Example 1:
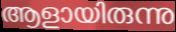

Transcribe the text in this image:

ആളായിരുന്നു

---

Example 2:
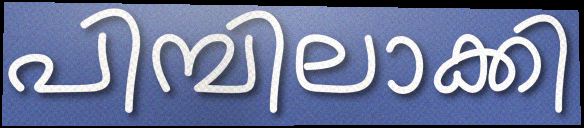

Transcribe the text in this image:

പിമ്പിലാക്കി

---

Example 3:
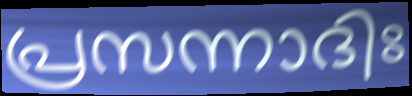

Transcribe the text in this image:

പ്രസന്നാദിഃ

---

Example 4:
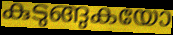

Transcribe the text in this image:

കുടുങ്ങുകയോ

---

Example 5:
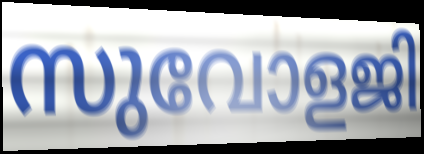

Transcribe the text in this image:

സുവോളജി